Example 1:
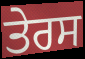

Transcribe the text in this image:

ਤੇਰਸ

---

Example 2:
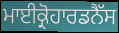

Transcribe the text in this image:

ਮਾਈਕ੍ਰੋਹਾਰਡਨੈੱਸ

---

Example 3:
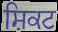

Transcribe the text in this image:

ਸ਼ਿਕਟ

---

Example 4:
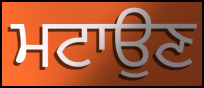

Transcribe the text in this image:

ਮਟਾਉਣ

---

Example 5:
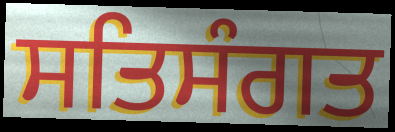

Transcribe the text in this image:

ਸਤਿਸੰਗਤ